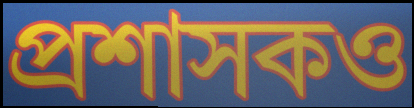
প্রশাসকও